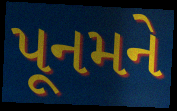
પૂનમને